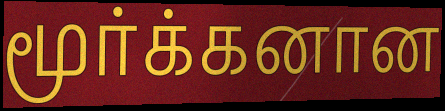
மூர்க்கனான